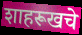
शाहरूखचे